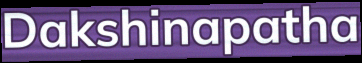
Dakshinapatha